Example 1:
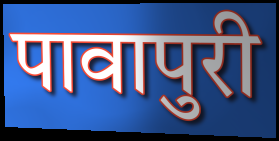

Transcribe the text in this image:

पावापुरी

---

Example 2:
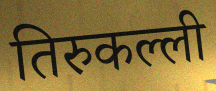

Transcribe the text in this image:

तिरुकल्ली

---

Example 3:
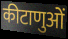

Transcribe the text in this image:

कीटाणुओं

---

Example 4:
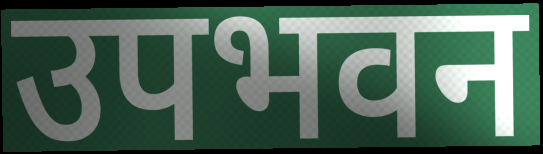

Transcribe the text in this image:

उपभवन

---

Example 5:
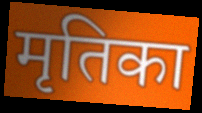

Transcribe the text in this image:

मृतिका